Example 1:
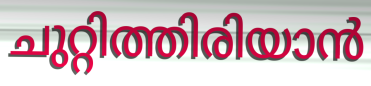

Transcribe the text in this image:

ചുറ്റിത്തിരിയാൻ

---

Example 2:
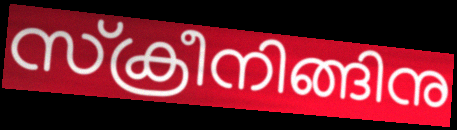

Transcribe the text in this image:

സ്ക്രീനിങ്ങിനു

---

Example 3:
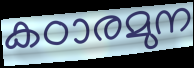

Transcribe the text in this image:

കഠാരമുന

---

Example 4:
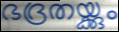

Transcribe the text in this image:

ഭദ്രതയ്ക്കും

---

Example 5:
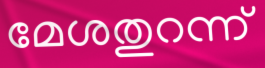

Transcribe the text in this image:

മേശതുറന്ന്